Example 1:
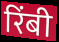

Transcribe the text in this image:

रिंबी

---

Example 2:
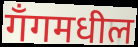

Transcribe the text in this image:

गँगमधील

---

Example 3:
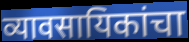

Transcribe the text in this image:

व्यावसायिकांचा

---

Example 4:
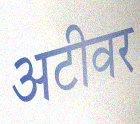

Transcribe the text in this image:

अटीवर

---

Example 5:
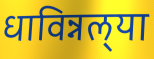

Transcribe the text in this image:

धाविन्नल्या